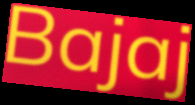
Bajaj